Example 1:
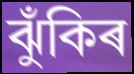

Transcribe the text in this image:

ঝুঁকিৰ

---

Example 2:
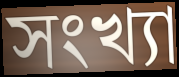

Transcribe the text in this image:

সংখ্যা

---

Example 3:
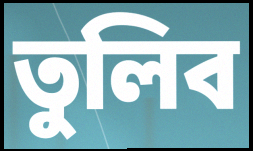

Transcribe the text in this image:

তুলিব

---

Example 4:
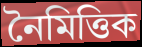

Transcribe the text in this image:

নৈমিত্তিক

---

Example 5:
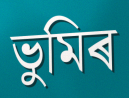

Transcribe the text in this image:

ভুমিৰ